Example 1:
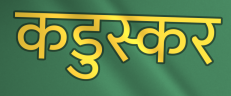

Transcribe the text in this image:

कडुस्कर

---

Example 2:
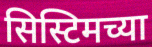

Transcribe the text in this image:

सिस्टिमच्या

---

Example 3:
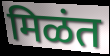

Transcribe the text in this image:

मिळंत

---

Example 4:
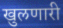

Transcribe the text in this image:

खुलणारी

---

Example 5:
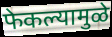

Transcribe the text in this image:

फेकल्यामुळे